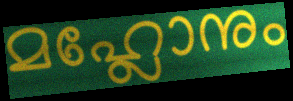
മഹ്ലോനും